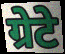
ग्रेटे